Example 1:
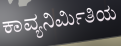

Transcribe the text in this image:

ಕಾವ್ಯನಿರ್ಮಿತಿಯ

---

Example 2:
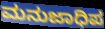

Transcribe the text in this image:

ಮನುಜಾಧಿಪ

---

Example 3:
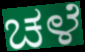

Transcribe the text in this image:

ಚಳೆ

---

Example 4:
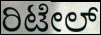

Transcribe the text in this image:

ರಿಟೇಲ್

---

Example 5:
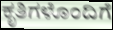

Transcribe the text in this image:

ಕೃತಿಗಳೊಂದಿಗೆ